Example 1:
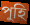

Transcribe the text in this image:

পুহি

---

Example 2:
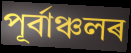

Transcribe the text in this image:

পূৰ্বাঞ্চলৰ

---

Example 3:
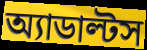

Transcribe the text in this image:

অ্যাডাল্টস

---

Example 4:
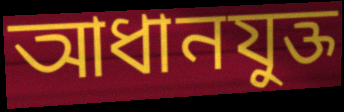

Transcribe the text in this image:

আধানযুক্ত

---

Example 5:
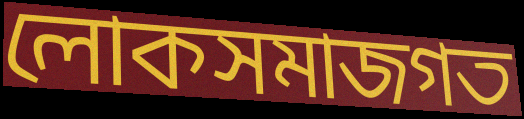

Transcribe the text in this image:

লোকসমাজগত